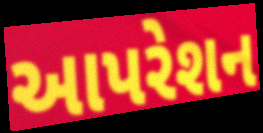
આપરેશન